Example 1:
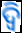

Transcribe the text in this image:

ଦ୍ଵି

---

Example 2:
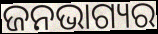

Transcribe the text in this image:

ଜନଭାଗ୍ୟର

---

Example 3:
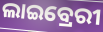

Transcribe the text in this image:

ଲାଇବ୍ରେରୀ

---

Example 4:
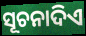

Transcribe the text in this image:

ସୂଚନାଦିଏ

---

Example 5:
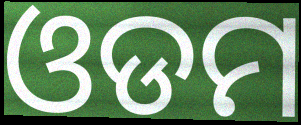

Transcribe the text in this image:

ଓଡମ